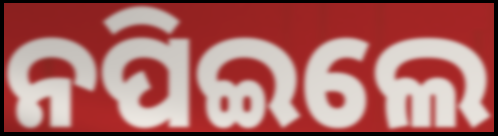
ନପିଇଲେ